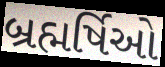
બ્રહ્મર્ષિઓ